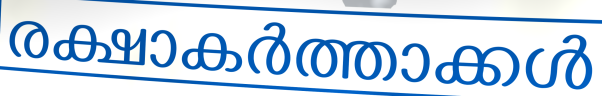
രക്ഷാകർത്താക്കൾ